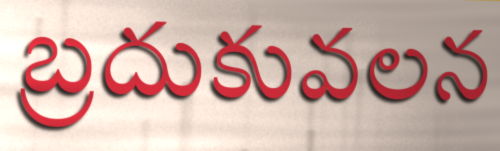
బ్రదుకువలన